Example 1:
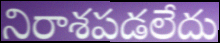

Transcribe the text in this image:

నిరాశపడలేదు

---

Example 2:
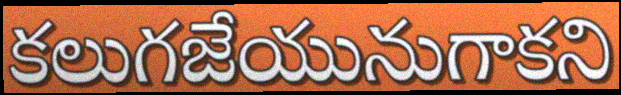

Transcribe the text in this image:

కలుగజేయునుగాకని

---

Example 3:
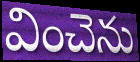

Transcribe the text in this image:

వించెను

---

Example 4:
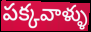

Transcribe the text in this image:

పక్కవాళ్ళు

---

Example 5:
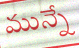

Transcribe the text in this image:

మున్నే